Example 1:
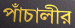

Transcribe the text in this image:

পাঁচালীর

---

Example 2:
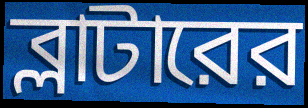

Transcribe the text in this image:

ব্লাটারের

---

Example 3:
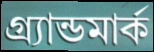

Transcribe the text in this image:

গ্র্যান্ডমার্ক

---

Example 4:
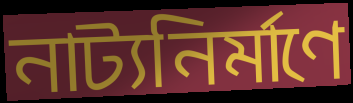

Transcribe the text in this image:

নাট্যনির্মাণে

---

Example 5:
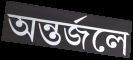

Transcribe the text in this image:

অন্তর্জলে